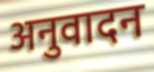
अनुवादन